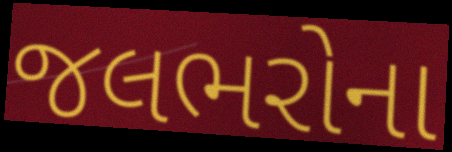
જલભરોના